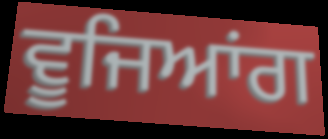
ਵੂਜਿਆਂਗ